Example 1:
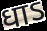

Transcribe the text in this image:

धाऽ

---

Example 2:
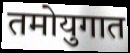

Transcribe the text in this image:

तमोयुगात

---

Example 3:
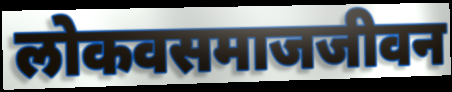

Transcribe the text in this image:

लोकवसमाजजीवन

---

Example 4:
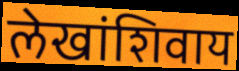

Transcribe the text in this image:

लेखांशिवाय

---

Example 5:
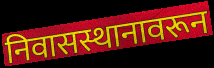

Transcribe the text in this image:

निवासस्थानावरून